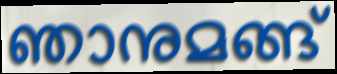
ഞാനുമങ്ങ്